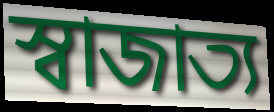
স্বাজাত্য